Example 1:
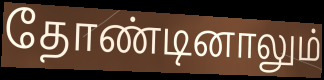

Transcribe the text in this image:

தோண்டினாலும்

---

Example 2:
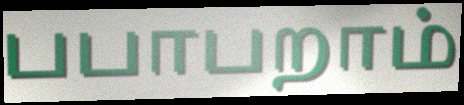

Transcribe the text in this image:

பபாபறாம்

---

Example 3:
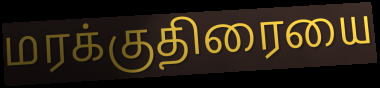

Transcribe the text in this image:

மரக்குதிரையை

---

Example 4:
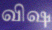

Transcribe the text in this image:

விஷ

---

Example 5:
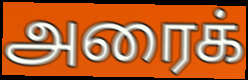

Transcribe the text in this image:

அரைக்